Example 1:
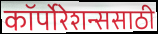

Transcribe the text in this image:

कॉर्पोरेशन्ससाठी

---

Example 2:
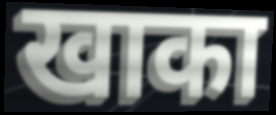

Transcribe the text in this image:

खाका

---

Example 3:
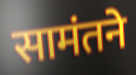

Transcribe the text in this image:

सामंतने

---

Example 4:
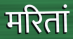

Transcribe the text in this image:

मरितां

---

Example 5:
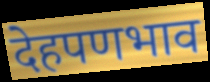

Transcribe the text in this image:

देहपणभाव